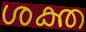
ശക്ത